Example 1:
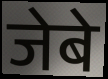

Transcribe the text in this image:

जेबे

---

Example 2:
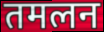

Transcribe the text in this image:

तमलन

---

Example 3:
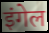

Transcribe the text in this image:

इंगेल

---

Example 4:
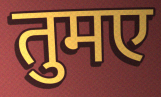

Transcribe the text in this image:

तुमए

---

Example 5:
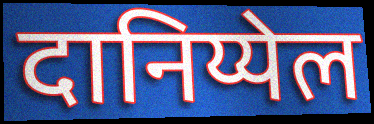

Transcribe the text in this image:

दानिय्येल